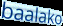
baalako